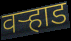
वऱ्हाड